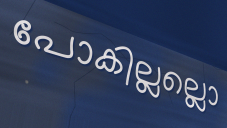
പോകില്ലല്ലൊ